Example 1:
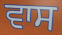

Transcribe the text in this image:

ਵਾਸ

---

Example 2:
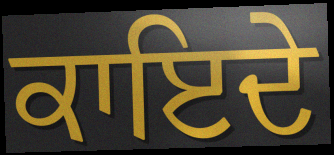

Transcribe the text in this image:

ਕਾਇਦੇ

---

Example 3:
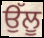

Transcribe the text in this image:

ਉੱਲੂ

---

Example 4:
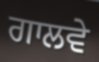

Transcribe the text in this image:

ਗਾਲਵੇ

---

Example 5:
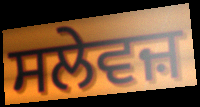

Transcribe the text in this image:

ਸਲੇਵਜ਼